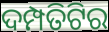
ଦମ୍ପତିଟିର